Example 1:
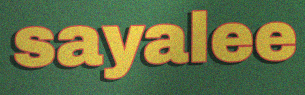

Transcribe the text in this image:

sayalee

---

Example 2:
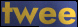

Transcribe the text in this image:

twee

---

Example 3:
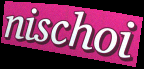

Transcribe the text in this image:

nischoi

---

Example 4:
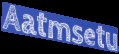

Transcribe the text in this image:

Aatmsetu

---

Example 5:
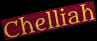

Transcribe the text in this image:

Chelliah